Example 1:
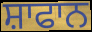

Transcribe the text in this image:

ਸ਼ਾਫਾਨ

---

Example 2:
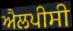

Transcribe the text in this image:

ਐਲਪੀਸੀ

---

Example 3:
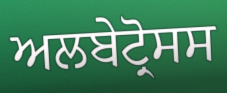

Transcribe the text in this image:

ਅਲਬੇਟ੍ਰੋਸਸ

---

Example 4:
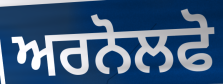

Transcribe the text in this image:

ਅਰਨੋਲਫੋ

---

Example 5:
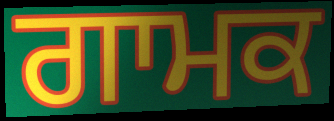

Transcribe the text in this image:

ਗਾਮਕ